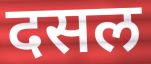
दसल